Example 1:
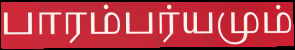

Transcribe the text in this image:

பாரம்பர்யமும்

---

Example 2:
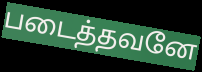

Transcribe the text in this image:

படைத்தவனே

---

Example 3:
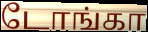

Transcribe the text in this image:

டோங்கா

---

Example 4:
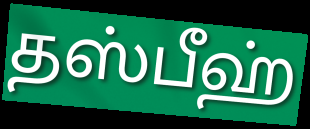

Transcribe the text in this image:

தஸ்பீஹ்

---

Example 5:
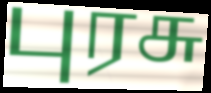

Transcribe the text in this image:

புரசு